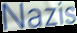
Nazis